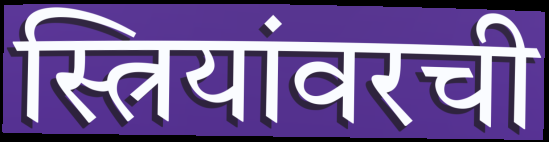
स्त्रियांवरची